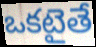
ఒకటైతే